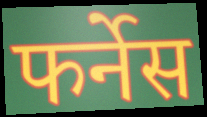
फर्नेस